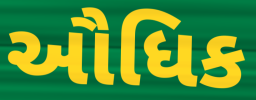
ઔધિક